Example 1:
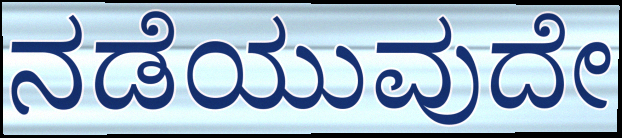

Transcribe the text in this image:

ನಡೆಯುವುದೇ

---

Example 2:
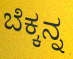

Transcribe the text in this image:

ಬೆಕ್ಕನ್ನ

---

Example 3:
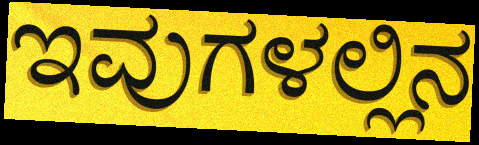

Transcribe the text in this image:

ಇವುಗಳಲ್ಲಿನ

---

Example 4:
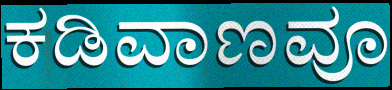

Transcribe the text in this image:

ಕಡಿವಾಣವೂ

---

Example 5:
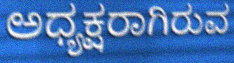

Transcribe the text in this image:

ಅಧ್ಯಕ್ಷರಾಗಿರುವ